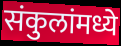
संकुलांमध्ये